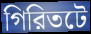
গিরিতটে